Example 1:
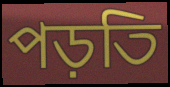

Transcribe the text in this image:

পড়তি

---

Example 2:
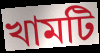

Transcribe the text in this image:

খামটি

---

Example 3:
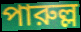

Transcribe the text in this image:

পারুল্ল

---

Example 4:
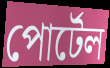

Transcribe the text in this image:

পোর্টেল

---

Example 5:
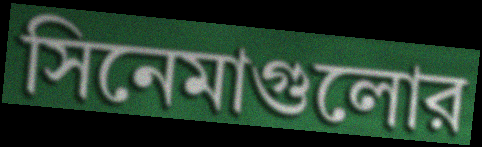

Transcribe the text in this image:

সিনেমাগুলোর